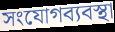
সংযোগব্যবস্থা